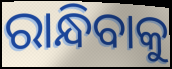
ରାନ୍ଧିବାକୁ